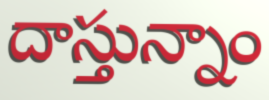
దాస్తున్నాం